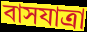
বাসযাত্রা